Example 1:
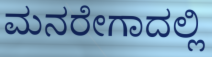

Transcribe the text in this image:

ಮನರೇಗಾದಲ್ಲಿ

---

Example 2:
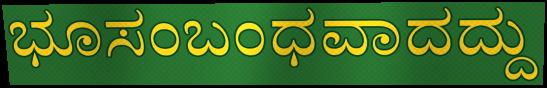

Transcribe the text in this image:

ಭೂಸಂಬಂಧವಾದದ್ದು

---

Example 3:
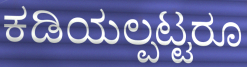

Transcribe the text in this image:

ಕಡಿಯಲ್ಪಟ್ಟರೂ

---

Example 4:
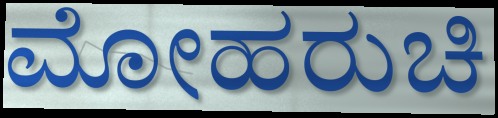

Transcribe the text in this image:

ಮೋಹರುಚಿ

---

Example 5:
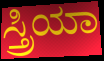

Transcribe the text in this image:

ಸ್ತ್ರಿಯಾ